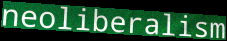
neoliberalism